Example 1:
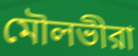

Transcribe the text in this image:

মৌলভীরা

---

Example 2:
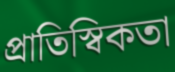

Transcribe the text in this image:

প্রাতিস্বিকতা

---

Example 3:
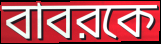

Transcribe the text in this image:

বাবরকে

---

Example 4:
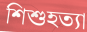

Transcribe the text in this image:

শিশুহত্যা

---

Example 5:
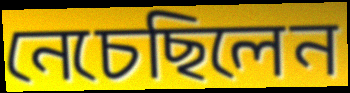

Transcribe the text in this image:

নেচেছিলেন